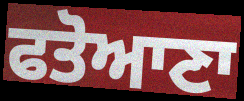
ਫਤੋਆਣਾ